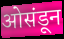
ओसंडून